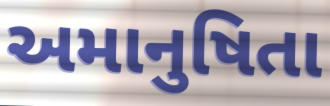
અમાનુષિતા